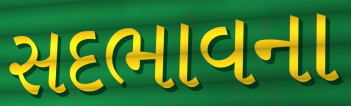
સદભાવના